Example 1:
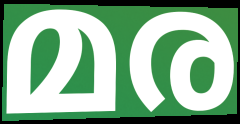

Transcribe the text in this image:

മര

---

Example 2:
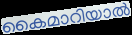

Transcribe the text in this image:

കൈമാറിയാൽ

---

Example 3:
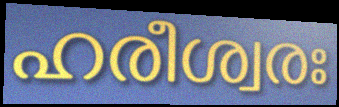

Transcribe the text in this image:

ഹരീശ്വരഃ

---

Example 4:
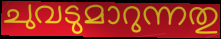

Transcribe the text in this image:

ചുവടുമാറുന്നതു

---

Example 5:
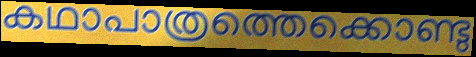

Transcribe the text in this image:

കഥാപാത്രത്തെക്കൊണ്ടു